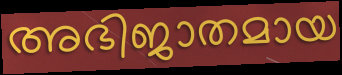
അഭിജാതമായ